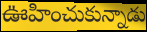
ఊహించుకున్నాడు